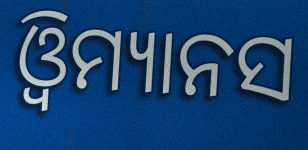
ଓ୍ବିମ୍ୟାନସ